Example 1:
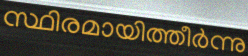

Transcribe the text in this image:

സ്ഥിരമായിത്തീർന്നു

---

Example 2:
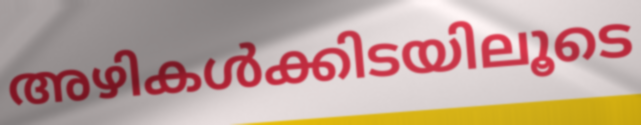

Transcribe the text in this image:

അഴികൾക്കിടയിലൂടെ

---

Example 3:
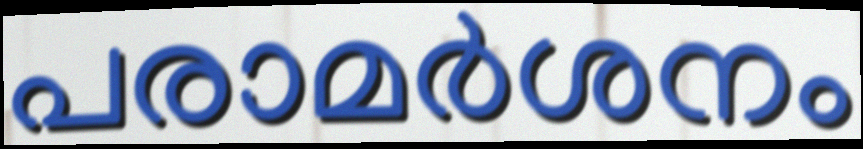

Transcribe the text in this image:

പരാമർശനം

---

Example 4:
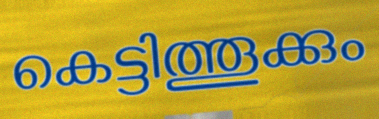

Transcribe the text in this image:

കെട്ടിത്തൂക്കും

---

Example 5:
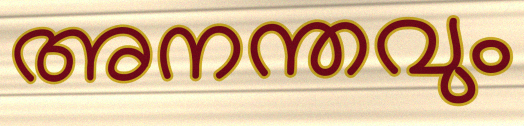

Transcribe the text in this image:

അനന്തവും